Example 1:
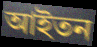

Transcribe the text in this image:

আইতন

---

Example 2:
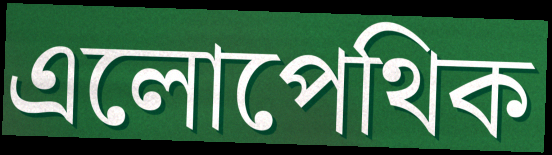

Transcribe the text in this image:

এলোপেথিক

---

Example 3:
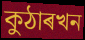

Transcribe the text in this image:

কুঠাৰখন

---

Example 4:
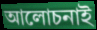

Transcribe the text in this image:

আলোচনাই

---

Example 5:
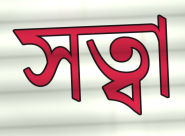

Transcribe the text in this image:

সত্বা